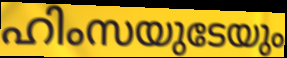
ഹിംസയുടേയും